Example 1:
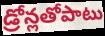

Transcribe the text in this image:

డ్రోన్లతోపాటు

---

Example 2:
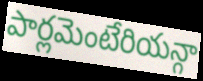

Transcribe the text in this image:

పార్లమెంటేరియన్గా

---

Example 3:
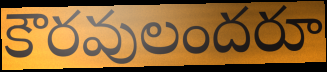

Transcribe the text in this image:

కౌరవులందరూ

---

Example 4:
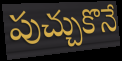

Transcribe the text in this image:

పుచ్చుకొనే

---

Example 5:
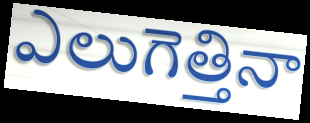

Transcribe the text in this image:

ఎలుగెత్తినా